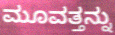
ಮೂವತ್ತನ್ನು